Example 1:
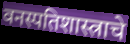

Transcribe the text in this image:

वनस्पतिशास्त्राचे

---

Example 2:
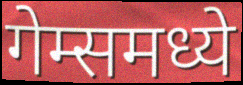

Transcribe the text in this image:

गेम्समध्ये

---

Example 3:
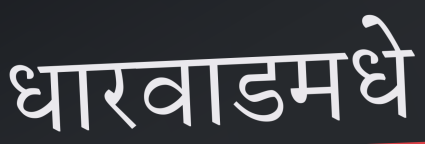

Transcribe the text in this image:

धारवाडमधे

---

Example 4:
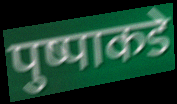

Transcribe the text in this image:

पुष्पाकडे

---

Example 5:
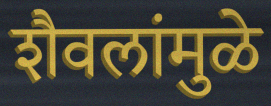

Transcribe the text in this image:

शैवलांमुळे